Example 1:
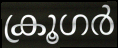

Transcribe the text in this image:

ക്രൂഗർ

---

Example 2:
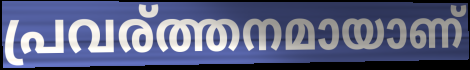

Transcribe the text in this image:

പ്രവര്ത്തനമായാണ്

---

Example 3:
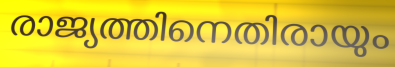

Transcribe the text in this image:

രാജ്യത്തിനെതിരായും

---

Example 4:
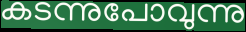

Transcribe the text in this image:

കടന്നുപോവുന്നു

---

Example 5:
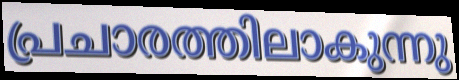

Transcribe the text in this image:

പ്രചാരത്തിലാകുന്നു